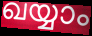
ഖയ്യാം